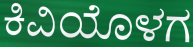
ಕಿವಿಯೊಳಗ